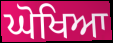
ਘੋਖਿਆ